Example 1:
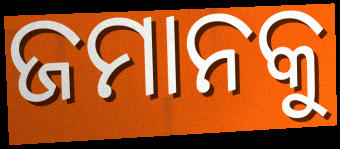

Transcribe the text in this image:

ଜମାନକୁ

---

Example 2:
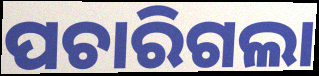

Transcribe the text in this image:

ପଚାରିଗଲା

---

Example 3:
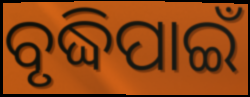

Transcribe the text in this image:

ବୃଦ୍ଧିପାଇଁ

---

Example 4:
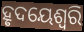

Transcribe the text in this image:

ହୃଦୟେଶ୍ଵରି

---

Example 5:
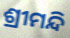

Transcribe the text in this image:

ଶ୍ରୀମନ୍ଦି